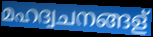
മഹദ്വചനങ്ങള്